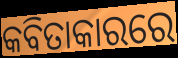
କବିତାକାରରେ